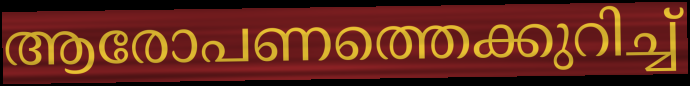
ആരോപണത്തെക്കുറിച്ച്